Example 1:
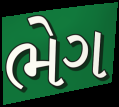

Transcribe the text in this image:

ભેગ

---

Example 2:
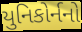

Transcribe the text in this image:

યુનિકોર્નનો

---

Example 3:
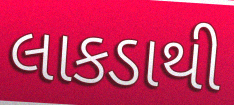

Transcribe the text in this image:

લાકડાથી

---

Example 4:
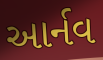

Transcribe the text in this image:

આર્નવ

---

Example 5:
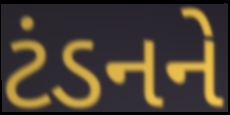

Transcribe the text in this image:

ટંડનને